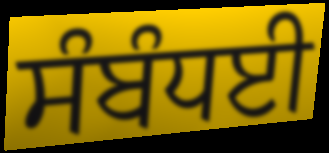
ਸੰਬੰਧਈ